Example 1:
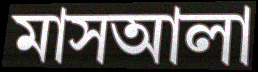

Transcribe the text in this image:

মাসআলা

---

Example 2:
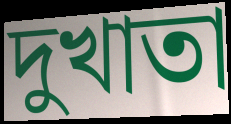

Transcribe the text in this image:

দুখাতা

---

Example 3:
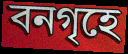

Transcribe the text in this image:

বনগৃহে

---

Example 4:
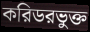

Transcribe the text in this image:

করিডরভুক্ত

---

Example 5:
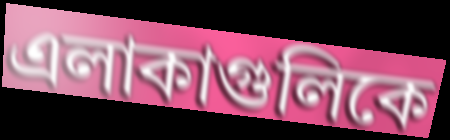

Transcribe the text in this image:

এলাকাগুলিকে